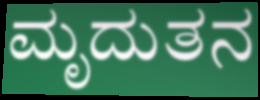
ಮೃದುತನ